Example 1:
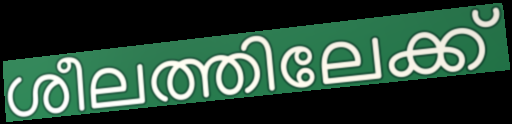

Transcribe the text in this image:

ശീലത്തിലേക്ക്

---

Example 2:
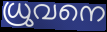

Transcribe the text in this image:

ധ്രുവനെ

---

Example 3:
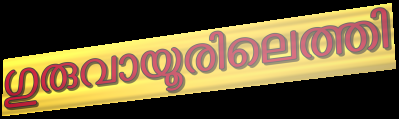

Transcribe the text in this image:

ഗുരുവായൂരിലെത്തി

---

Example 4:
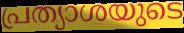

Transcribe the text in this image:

പ്രത്യാശയുടെ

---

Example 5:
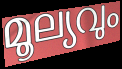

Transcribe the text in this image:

മൂല്യവും